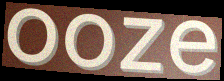
ooze